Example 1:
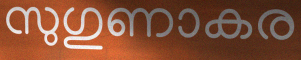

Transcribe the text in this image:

സുഗുണാകര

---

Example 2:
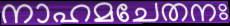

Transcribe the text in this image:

നാഹമചേതനഃ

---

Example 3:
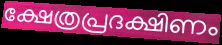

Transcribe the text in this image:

ക്ഷേത്രപ്രദക്ഷിണം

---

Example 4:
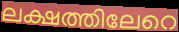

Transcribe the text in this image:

ലക്ഷത്തിലേറെ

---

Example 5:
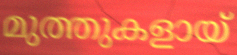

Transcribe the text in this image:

മുത്തുകളായ്